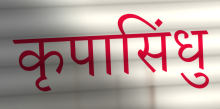
कृपासिंधु